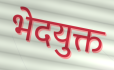
भेदयुक्त